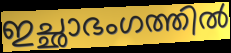
ഇച്ഛാഭംഗത്തിൽ